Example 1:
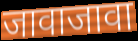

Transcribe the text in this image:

जावाजावा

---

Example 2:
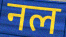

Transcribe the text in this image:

नल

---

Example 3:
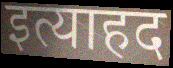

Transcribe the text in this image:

इत्याहद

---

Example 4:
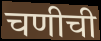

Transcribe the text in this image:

चणीची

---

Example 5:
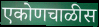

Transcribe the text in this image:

एकोणचाळीस